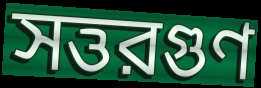
সত্তরগুণ